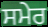
ਸਮੇਰ